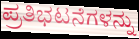
ಪ್ರತಿಭಟನೆಗಳನ್ನು